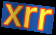
xrr